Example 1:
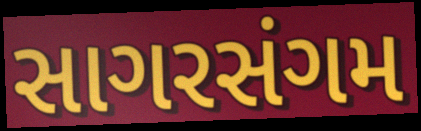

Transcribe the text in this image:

સાગરસંગમ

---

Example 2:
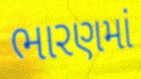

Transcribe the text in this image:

ભારણમાં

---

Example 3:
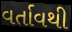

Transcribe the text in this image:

વર્તાવથી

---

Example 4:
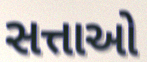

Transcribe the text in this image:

સત્તાઓ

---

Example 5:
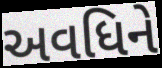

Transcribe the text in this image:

અવધિને